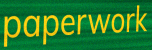
paperwork